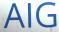
AIG